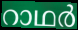
റാഥർ